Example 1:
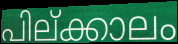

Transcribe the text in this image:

പില്ക്കാലം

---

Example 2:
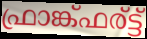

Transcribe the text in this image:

ഫ്രാങ്ക്ഫര്ട്ട്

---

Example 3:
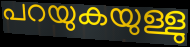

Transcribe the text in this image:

പറയുകയുള്ളു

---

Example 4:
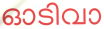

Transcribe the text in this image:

ഓടിവാ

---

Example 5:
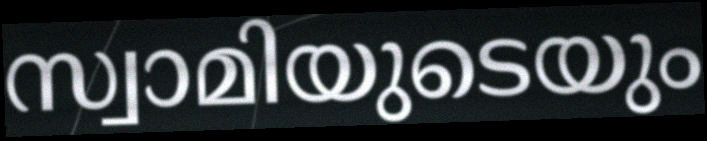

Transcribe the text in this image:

സ്വാമിയുടെയും